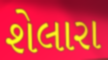
શેલારા